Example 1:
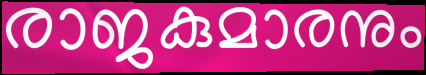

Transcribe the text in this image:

രാജകുമാരനും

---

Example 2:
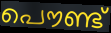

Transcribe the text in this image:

പൌണ്ട്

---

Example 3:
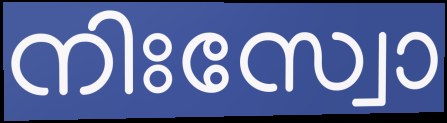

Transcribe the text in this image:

നിഃസ്വോ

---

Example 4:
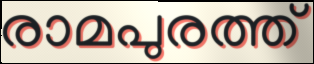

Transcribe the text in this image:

രാമപുരത്ത്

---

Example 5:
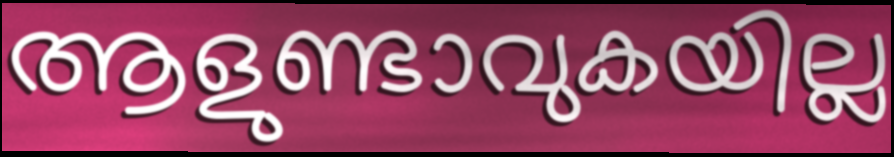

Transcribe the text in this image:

ആളുണ്ടാവുകയില്ല